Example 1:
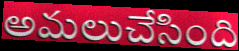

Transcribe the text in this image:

అమలుచేసింది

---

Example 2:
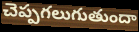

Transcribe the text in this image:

చెప్పగలుగుతుందా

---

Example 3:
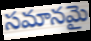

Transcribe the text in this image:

సమానమై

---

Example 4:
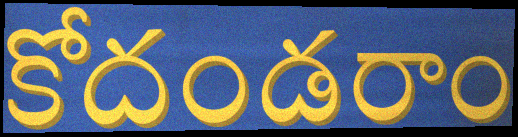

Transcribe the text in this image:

కోదండరాం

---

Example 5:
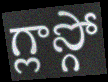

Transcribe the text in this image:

గ్లాస్గో